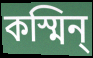
কস্মিন্